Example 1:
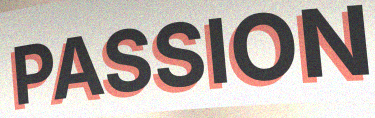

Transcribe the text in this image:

PASSION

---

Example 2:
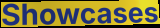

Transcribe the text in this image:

Showcases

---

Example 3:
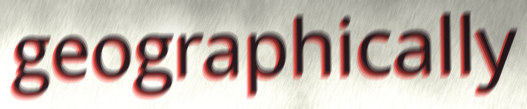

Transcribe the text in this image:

geographically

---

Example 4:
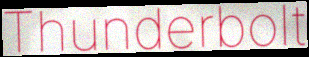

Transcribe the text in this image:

Thunderbolt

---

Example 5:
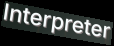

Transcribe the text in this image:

Interpreter